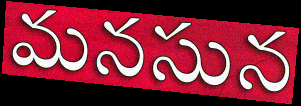
మనసున